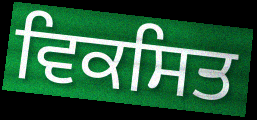
ਵਿਕਸਿਤ